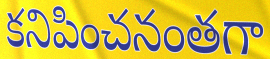
కనిపించనంతగా